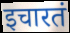
इचारतं